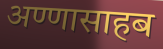
अण्णासाहब